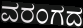
ವರಂಗದ